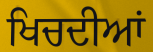
ਖਿਚਦੀਆਂ